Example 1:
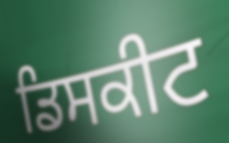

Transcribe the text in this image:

ਡਿਸਕੀਟ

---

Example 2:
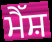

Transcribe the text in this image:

ਮੈੱਸ਼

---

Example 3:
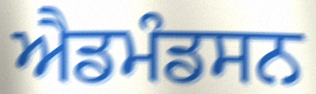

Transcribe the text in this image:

ਐਡਮੰਡਸਨ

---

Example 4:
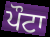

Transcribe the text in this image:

ਪੌਟਾ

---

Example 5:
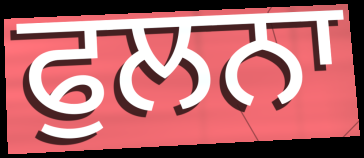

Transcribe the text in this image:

ਫੁਲਨਾ